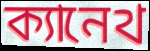
ক্যানেথ